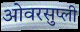
ओवरसुप्ली